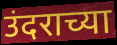
उंदराच्या